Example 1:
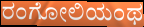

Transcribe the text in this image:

ರಂಗೋಲಿಯಂಥ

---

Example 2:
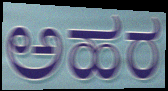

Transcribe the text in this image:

ಅಹರ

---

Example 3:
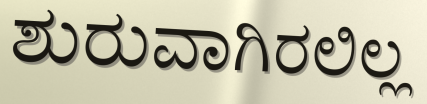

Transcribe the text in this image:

ಶುರುವಾಗಿರಲಿಲ್ಲ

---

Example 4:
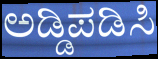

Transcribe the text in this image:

ಅಡ್ಡಿಪಡಿಸಿ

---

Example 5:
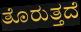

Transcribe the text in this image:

ತೊರುತ್ತದೆ